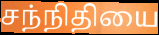
சந்நிதியை